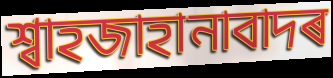
শ্বাহজাহানাবাদৰ